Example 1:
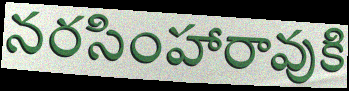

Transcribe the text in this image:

నరసింహారావుకి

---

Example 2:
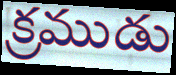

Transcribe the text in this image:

క్రముడు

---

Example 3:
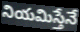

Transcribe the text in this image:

నియమిస్తేనే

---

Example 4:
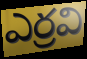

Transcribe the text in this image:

ఎర్రవి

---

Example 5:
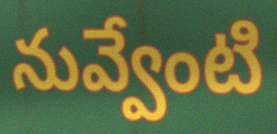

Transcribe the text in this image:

నువ్వేంటి